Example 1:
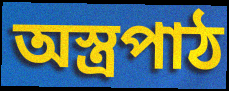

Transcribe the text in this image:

অস্ত্রপাঠ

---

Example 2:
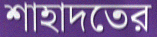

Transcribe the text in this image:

শাহাদতের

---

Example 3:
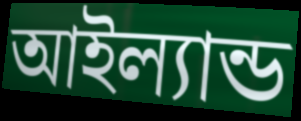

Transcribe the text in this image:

আইল্যান্ড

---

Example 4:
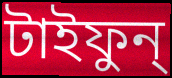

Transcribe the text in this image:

টাইফুন্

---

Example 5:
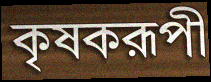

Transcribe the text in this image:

কৃষকরূপী